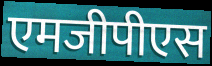
एमजीपीएस